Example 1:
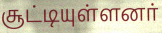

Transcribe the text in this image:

சூட்டியுள்ளனர்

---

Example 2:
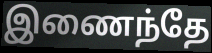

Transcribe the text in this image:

இணைந்தே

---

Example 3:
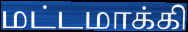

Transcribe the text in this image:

மட்டமாக்கி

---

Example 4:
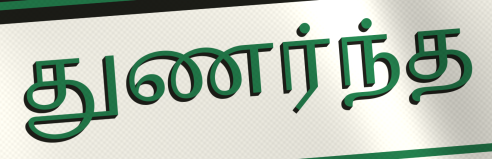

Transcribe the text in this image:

துணர்ந்த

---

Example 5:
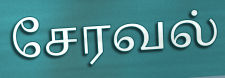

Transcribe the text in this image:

சேரவல்